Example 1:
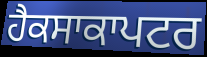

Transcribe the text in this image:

ਹੈਕਸਾਕਾਪਟਰ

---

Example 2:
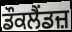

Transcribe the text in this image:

ਡੌਕਲੈਂਡਜ਼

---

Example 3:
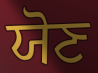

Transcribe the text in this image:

ਯੋਣ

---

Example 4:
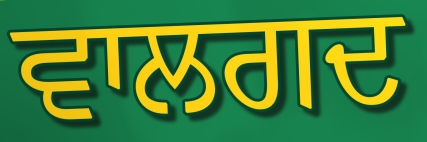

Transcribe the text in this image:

ਵਾਲਗਦ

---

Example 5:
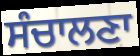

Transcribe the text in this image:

ਸੰਚਾਲਣਾ